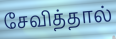
சேவித்தால்